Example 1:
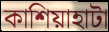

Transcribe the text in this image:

কাশিয়াহাটা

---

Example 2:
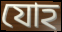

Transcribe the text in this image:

যোহ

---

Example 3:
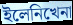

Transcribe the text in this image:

ইলেনিখেনা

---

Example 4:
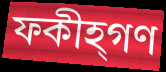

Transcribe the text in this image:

ফকীহ্গণ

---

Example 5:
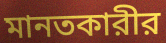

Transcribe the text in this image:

মানতকারীর